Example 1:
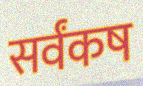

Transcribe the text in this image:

सर्वंकष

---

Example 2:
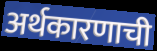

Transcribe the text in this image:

अर्थकारणाची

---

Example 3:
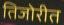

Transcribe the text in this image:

तिजोरीत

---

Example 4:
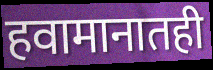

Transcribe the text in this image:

हवामानातही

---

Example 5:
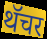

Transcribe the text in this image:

थॅचर